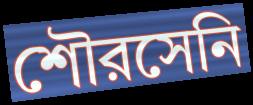
শৌরসেনি